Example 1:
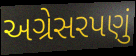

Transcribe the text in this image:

અગ્રેસરપણું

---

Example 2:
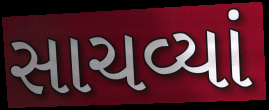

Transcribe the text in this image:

સાચવ્યાં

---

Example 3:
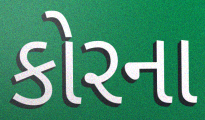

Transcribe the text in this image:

કોરના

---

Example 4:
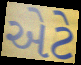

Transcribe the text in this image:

એટે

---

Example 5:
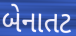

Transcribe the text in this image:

બેનાતટ